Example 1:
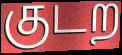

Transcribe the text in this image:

குடற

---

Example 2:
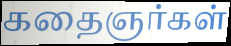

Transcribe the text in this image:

கதைஞர்கள்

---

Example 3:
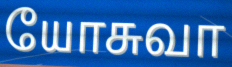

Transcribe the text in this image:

யோசுவா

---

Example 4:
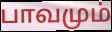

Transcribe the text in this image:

பாவமும்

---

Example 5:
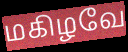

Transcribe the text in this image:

மகிழவே